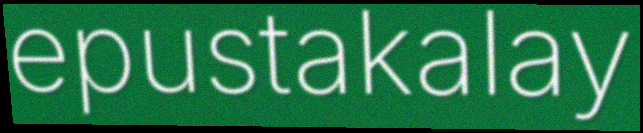
epustakalay